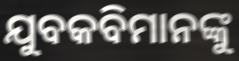
ଯୁବକବିମାନଙ୍କୁ